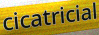
cicatricial